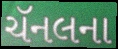
ચૅનલના